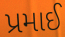
પ્રમાઈ